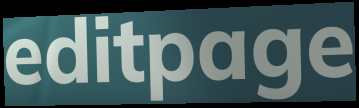
editpage